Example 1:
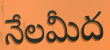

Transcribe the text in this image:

నేలమీద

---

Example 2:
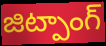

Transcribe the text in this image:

జిట్పాంగ్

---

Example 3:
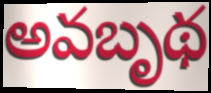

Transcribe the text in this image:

అవబృథ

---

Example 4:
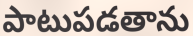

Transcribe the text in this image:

పాటుపడతాను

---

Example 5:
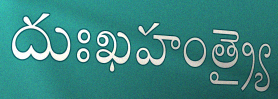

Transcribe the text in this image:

దుఃఖహంత్ర్యై